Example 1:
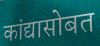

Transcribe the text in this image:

कांद्यासोबत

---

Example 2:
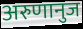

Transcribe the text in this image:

अरुणानुज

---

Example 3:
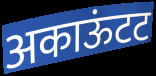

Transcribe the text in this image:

अकाऊंटट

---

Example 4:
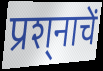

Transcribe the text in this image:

प्रश्नाचें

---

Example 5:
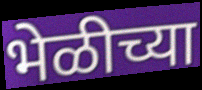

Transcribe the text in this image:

भेळीच्या